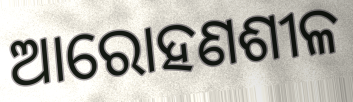
ଆରୋହଣଶୀଳ